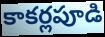
కాకర్లపూడి